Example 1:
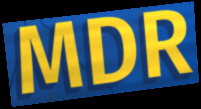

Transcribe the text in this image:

MDR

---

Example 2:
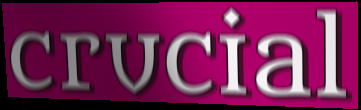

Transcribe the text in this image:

crucial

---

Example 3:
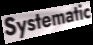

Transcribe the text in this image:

Systematic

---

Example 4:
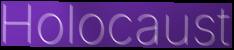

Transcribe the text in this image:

Holocaust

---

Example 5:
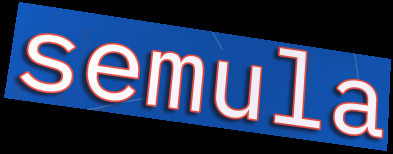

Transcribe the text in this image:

semula